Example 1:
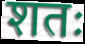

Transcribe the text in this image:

शतः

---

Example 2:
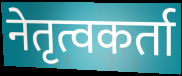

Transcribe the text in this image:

नेतृत्वकर्ता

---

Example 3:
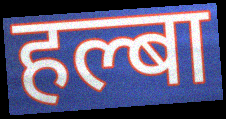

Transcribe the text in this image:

हल्बा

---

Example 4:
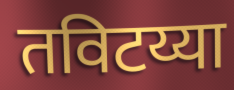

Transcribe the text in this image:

तविटय्या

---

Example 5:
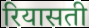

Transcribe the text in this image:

रियासती